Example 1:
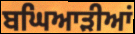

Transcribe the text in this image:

ਬਘਿਆੜੀਆਂ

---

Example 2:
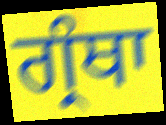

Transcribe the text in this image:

ਗ੍ਰੰਥਾ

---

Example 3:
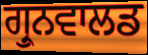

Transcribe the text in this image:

ਗ੍ਰੁਨਵਾਲਡ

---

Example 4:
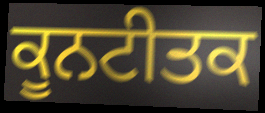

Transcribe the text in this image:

ਕੂਨਟੀਤਕ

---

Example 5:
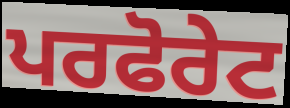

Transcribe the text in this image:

ਪਰਫੋਰੇਟ